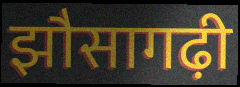
झौसागढ़ी